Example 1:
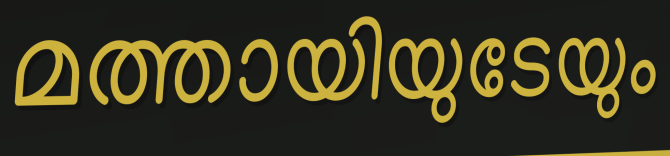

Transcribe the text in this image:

മത്തായിയുടേയും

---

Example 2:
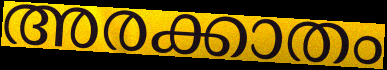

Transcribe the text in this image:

അരക്കാതം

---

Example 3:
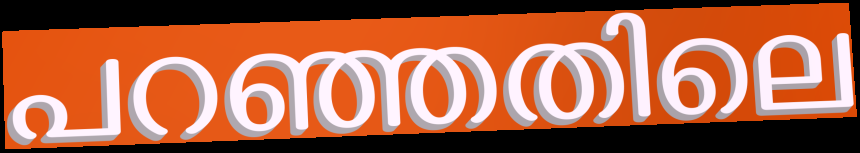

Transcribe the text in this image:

പറഞ്ഞതിലെ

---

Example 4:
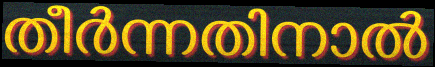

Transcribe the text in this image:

തീർന്നതിനാൽ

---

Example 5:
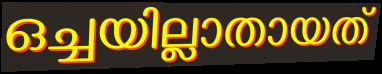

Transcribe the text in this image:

ഒച്ചയില്ലാതായത്